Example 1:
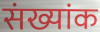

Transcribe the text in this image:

संख्यांक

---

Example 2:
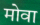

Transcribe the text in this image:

मोवा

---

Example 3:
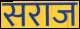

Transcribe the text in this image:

सराज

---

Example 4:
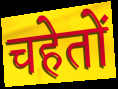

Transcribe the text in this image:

चहेतों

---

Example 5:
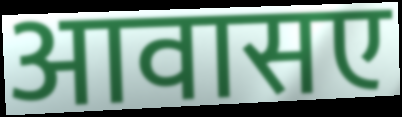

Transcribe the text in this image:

आवासए